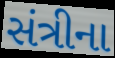
સંત્રીના